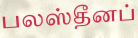
பலஸ்தீனப்